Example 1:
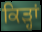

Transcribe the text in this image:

ਕਿੜ੍ਹਾਂ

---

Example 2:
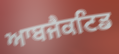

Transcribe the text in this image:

ਆਬਜੈਕਟਿਡ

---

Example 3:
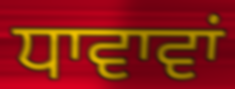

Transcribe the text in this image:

ਧਾਵਾਵਾਂ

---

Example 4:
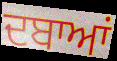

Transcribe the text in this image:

ਦਬਾਆਂ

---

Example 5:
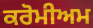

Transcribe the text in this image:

ਕਰੋਮੀਅਮ